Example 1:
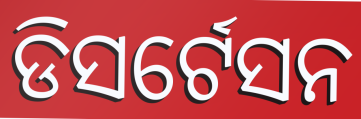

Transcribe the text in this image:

ଡିସର୍ଟେସନ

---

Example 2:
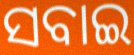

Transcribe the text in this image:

ସବାଇ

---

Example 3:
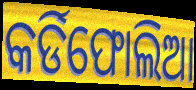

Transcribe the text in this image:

କର୍ଡିଫୋଲିଆ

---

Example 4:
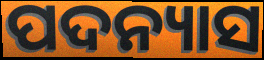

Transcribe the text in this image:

ପଦନ୍ୟାସ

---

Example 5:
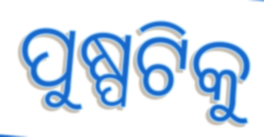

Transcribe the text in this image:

ପୁଷ୍ପଟିକୁ